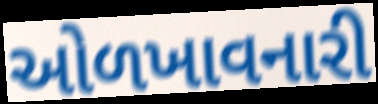
ઓળખાવનારી